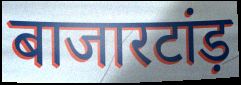
बाजारटांड़